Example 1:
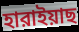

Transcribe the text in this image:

হারাইয়াছ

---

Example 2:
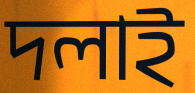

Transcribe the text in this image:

দলাই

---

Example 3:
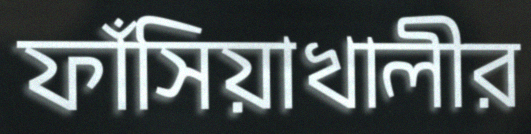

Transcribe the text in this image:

ফাঁসিয়াখালীর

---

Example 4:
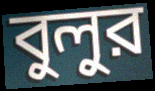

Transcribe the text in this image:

বুলুর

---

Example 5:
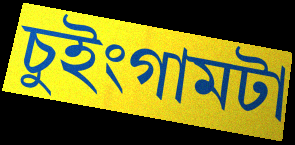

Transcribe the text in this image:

চুইংগামটা